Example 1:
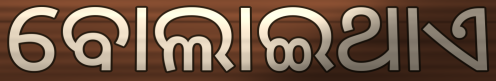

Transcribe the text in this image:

ବୋଲାଇଥାଏ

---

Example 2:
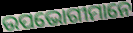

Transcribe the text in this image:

ଉପଭୋଗୀମାନେ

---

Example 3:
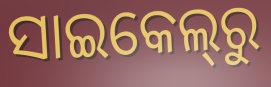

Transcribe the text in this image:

ସାଇକେଲ୍‌ରୁ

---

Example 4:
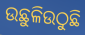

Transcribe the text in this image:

ଉଛୁଳିଉଠୁଛି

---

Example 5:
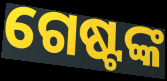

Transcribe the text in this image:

ଗେଷ୍ଟଙ୍କ